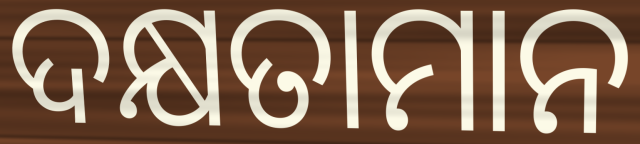
ଦକ୍ଷତାମାନ